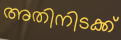
അതിനിടക്ക്